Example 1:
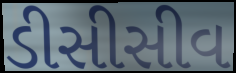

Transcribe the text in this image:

ડીસીસીવ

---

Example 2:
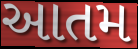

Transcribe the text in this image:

આતમ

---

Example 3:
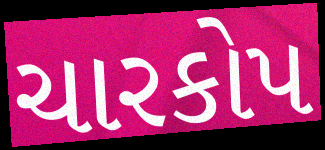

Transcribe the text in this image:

ચારકોપ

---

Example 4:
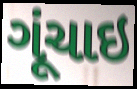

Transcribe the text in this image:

ગૂંચાઇ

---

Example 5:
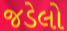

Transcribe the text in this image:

જડેલો